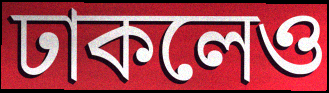
ঢাকলেও